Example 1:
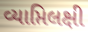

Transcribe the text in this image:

વ્યાપ્તિલક્ષી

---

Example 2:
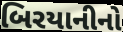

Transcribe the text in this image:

બિરયાનીનો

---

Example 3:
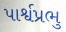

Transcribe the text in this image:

પાર્શ્વપ્રભુ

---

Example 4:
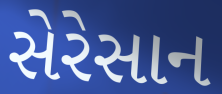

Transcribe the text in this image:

સેરેસાન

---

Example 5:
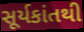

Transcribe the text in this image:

સૂર્યકાંતથી